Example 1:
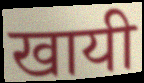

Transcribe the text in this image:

खायी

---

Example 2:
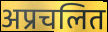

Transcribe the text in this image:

अप्रचलित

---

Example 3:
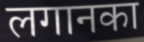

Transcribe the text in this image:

लगानका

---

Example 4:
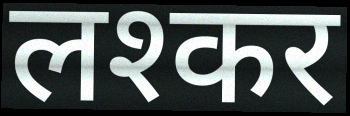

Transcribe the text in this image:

लश्कर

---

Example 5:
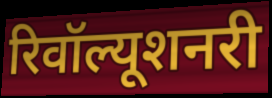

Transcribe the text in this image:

रिवॉल्यूशनरी